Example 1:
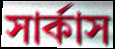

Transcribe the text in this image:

সার্কাস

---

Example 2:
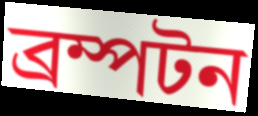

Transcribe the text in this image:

ব্রম্পটন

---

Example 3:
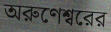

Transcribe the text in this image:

অরুণেশ্বরের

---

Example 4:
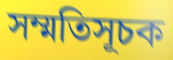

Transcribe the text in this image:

সম্মতিসূচক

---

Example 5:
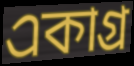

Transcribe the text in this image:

একাগ্র